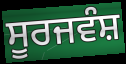
ਸੂਰਜਵੰਸ਼